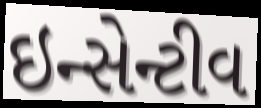
ઇન્સેન્ટીવ